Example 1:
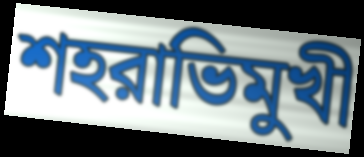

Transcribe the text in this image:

শহরাভিমুখী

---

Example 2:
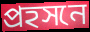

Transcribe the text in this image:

প্রহসনে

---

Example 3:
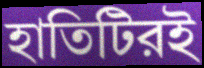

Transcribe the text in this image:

হাতিটিরই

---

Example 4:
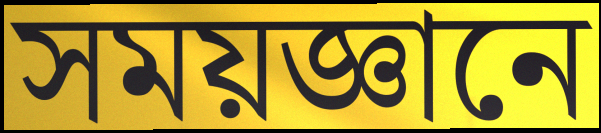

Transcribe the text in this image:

সময়জ্ঞানে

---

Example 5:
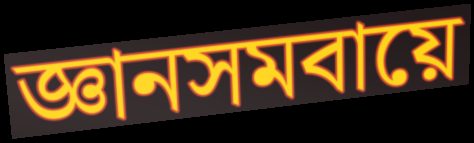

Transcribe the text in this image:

জ্ঞানসমবায়ে